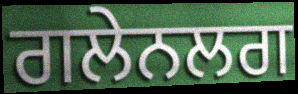
ਗਲੇਨਲਗ